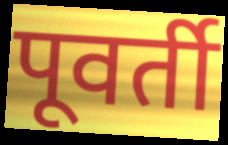
पूवर्ती